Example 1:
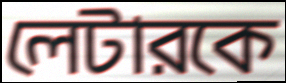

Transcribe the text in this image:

লেটারকে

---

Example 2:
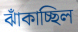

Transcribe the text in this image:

ঝাঁকাচ্ছিল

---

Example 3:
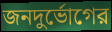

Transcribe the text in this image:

জনদুর্ভোগের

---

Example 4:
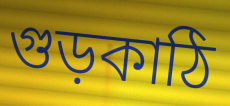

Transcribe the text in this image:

গুড়কাঠি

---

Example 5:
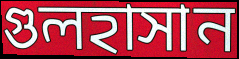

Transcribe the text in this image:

গুলহাসান